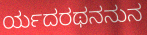
ರ್ಯದರಥನನುನ